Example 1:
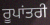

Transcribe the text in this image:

ਰੂਪਾਂਤਰੀ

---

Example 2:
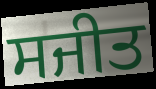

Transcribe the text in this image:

ਸਜੀਤ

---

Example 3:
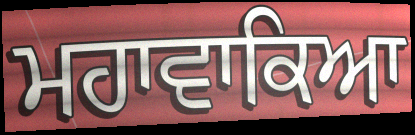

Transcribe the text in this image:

ਮਹਾਵਾਕਿਆ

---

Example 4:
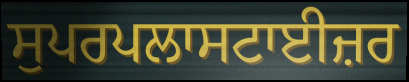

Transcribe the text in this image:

ਸੁਪਰਪਲਾਸਟਾਈਜ਼ਰ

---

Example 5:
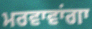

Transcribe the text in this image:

ਮਰਵਾਵਾਂਗਾ